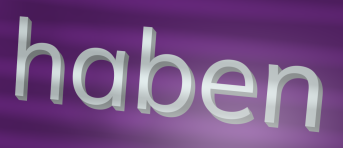
haben